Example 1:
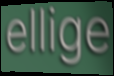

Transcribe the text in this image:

ellige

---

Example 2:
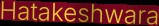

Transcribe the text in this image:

Hatakeshwara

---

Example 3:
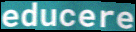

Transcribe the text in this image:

educere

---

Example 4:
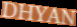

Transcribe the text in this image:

DHYAN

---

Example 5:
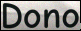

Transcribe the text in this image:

Dono